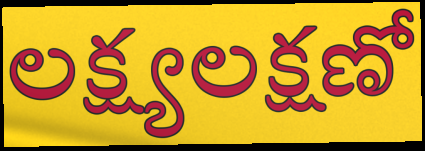
లక్ష్యలక్షణో